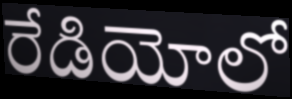
రేడియోలో